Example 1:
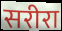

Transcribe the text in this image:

सरीरा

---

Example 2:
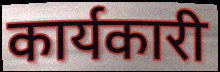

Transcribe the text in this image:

कार्यकारी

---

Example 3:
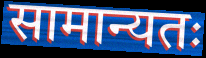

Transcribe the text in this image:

सामान्यतः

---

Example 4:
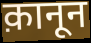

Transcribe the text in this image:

क़ानून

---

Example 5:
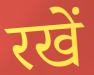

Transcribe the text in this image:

रखें